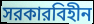
সরকারবিহীন